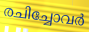
രചിച്ചോവർ